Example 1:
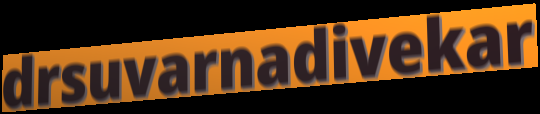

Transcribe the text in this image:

drsuvarnadivekar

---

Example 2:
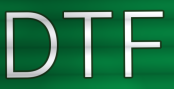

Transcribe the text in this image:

DTF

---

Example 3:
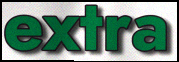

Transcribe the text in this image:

extra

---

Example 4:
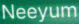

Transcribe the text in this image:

Neeyum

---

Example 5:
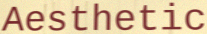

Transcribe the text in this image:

Aesthetic